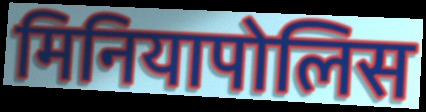
मिनियापोलिस